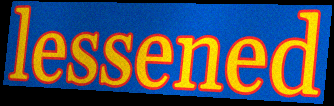
lessened